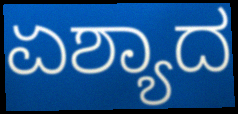
ಏಶ್ಯಾದ